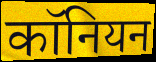
कॉनियन